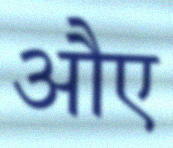
औए